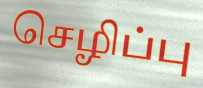
செழிப்பு